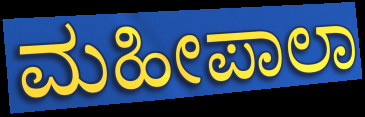
ಮಹೀಪಾಲಾ